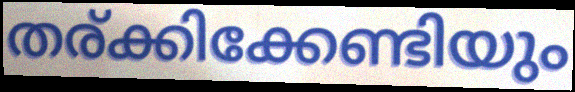
തര്ക്കിക്കേണ്ടിയും